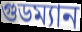
গুডম্যান